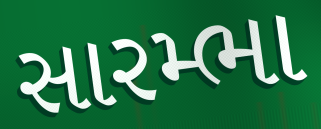
સારમ્ભા